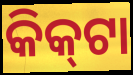
କିକ୍‍ଟା